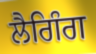
ਲੈਗਿੰਗ